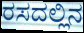
ರಸದಲ್ಲಿನ